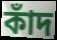
কাঁদ